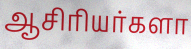
ஆசிரியர்களா